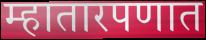
म्हातारपणात